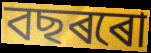
বছৰৰো